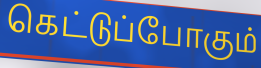
கெட்டுப்போகும்